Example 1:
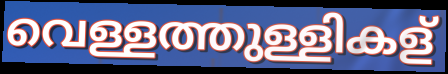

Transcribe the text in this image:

വെള്ളത്തുള്ളികള്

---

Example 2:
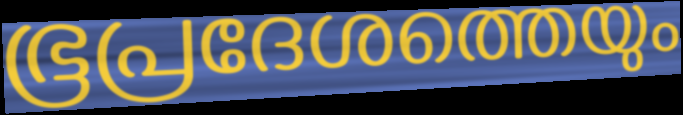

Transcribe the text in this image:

ഭൂപ്രദേശത്തെയും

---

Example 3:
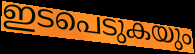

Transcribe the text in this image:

ഇടപെടുകയും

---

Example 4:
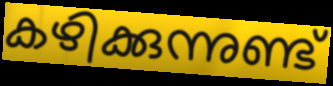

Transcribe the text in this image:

കഴിക്കുന്നുണ്ട്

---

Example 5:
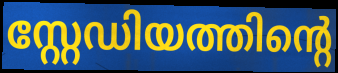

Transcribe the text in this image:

സ്റ്റേഡിയത്തിന്റെ